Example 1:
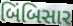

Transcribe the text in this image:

બિંબિસાર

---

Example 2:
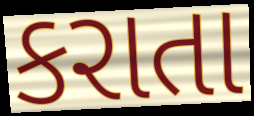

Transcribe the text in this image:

કરાતા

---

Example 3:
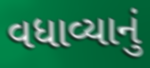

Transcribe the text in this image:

વધાવ્યાનું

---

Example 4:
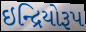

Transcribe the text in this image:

ઇન્દ્રિયોરૂપ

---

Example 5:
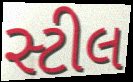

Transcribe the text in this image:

સ્ટીલ